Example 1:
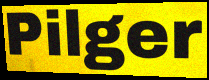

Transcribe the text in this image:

Pilger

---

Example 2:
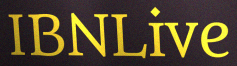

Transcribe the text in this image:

IBNLive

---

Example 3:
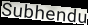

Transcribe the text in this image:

Subhendu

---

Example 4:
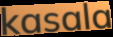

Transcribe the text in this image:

kasala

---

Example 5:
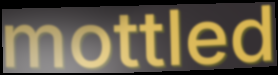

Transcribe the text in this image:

mottled